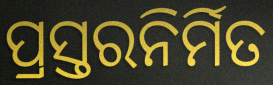
ପ୍ରସ୍ତରନିର୍ମିତ